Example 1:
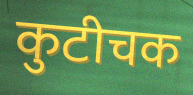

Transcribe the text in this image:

कुटीचक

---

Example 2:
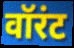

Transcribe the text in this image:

वॉरंट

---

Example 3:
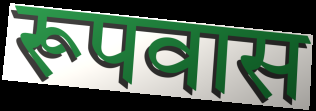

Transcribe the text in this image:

रूपवास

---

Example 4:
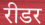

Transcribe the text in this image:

रीडर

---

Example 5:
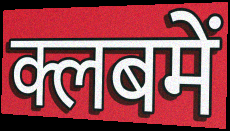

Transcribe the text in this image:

क्लबमें